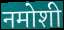
नमोशी